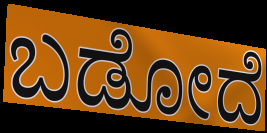
ಬಡೋದೆ